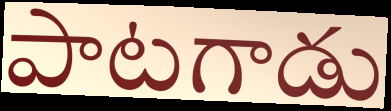
పాటగాడు